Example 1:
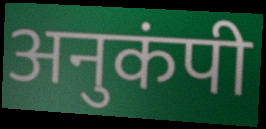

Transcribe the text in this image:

अनुकंपी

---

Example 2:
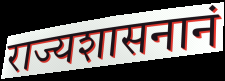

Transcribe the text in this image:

राज्यशासनानं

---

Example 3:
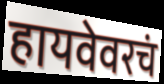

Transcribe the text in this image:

हायवेवरचं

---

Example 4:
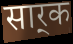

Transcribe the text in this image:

सार्क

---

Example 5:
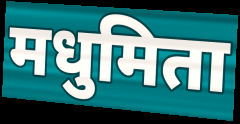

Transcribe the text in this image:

मधुमिता